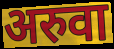
अरुवा